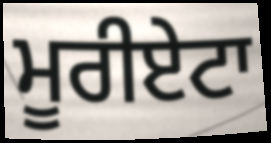
ਮੂਰੀਏਟਾ